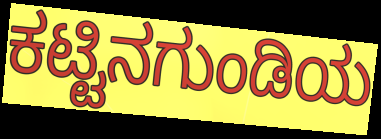
ಕಟ್ಟಿನಗುಂಡಿಯ